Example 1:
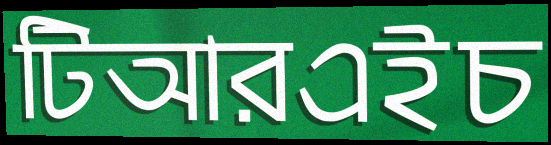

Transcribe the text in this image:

টিআরএইচ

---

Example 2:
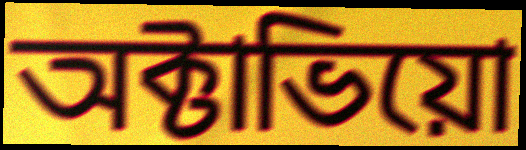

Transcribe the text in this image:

অক্টাভিয়ো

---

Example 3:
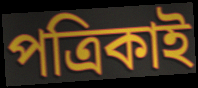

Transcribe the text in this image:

পত্রিকাই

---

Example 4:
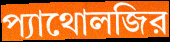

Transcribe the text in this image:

প্যাথোলজির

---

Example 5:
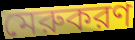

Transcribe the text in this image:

মেরুকরণ